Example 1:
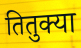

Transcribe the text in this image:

तितुक्या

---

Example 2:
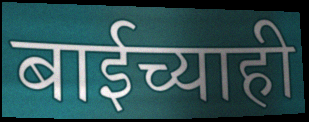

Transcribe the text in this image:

बाईच्याही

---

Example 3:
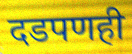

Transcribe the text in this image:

दडपणही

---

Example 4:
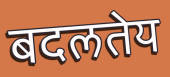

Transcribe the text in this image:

बदलतेय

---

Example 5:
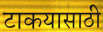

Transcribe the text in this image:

टाकयासाठी